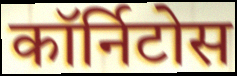
कॉर्निटोस